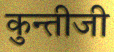
कुन्तीजी